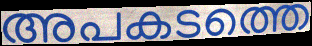
അപകടത്തെ